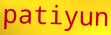
patiyun